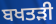
ਬਖਤੜੀ